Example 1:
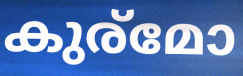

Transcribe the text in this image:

കുര്മോ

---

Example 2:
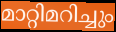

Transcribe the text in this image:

മാറ്റിമറിച്ചും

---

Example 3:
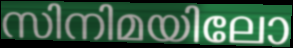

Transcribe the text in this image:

സിനിമയിലോ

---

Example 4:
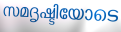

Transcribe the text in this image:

സമദൃഷ്ടിയോടെ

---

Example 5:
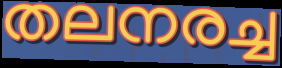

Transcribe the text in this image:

തലനരച്ച